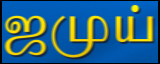
ஜமுய்